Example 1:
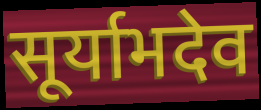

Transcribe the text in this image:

सूर्याभदेव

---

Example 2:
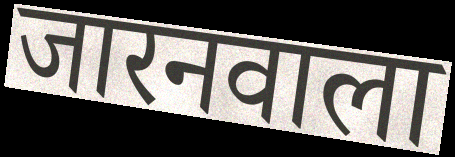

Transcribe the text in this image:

जारनवाला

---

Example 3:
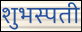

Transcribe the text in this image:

शुभस्पती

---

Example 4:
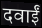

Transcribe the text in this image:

दवाईं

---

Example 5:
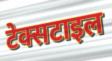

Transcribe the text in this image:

टेक्सटाइल